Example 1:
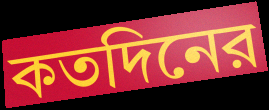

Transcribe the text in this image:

কতদিনের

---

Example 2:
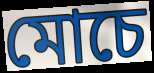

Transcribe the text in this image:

মোচে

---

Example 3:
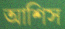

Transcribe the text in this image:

আশিস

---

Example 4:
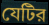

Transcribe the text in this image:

যেটির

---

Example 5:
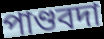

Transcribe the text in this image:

পাণ্ডবদা